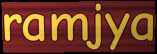
ramjya